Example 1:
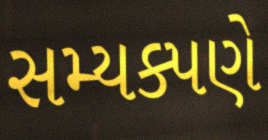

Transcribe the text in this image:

સમ્યક્પણે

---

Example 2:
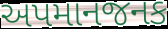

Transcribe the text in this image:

અપમાનજનક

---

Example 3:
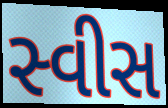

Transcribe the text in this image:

સ્વીસ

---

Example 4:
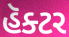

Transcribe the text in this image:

હૅક્ટર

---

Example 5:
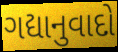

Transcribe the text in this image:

ગદ્યાનુવાદો